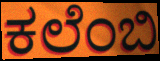
ಕಲೆಂಬಿ